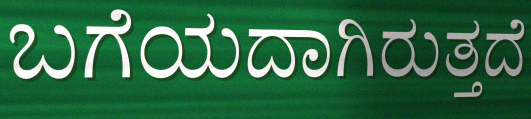
ಬಗೆಯದಾಗಿರುತ್ತದೆ